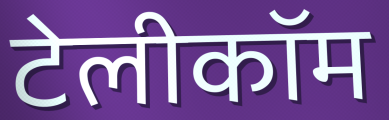
टेलीकॉम